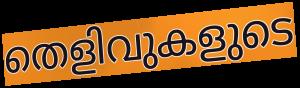
തെളിവുകളുടെ